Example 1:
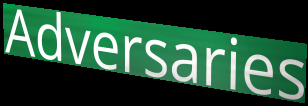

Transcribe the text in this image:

Adversaries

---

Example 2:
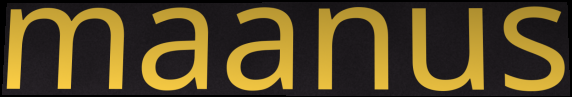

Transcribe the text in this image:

maanus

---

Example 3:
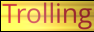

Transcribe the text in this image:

Trolling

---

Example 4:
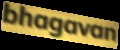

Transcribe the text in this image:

bhagavan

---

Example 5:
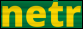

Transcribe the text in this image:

netr